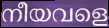
നീയവളെ